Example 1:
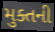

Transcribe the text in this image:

મુક્તની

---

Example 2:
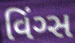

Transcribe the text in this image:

વિંગ્સ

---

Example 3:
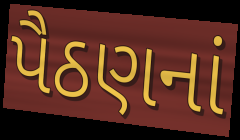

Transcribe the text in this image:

પૈઠણનાં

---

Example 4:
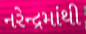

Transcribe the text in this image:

નરેન્દ્રમાંથી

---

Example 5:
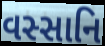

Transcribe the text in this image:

વસ્સાનિ